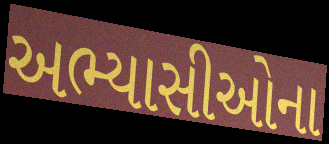
અભ્યાસીઓના